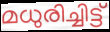
മധുരിച്ചിട്ട്